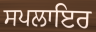
ਸਪਲਾਇਰ